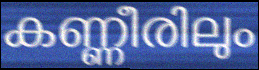
കണ്ണീരിലും